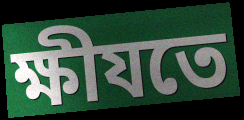
ক্ষীযতে